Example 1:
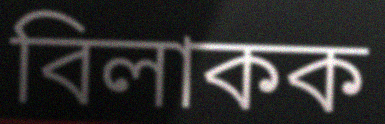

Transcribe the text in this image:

বিলাকক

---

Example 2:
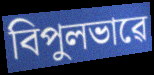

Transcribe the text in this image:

বিপুলভাৱে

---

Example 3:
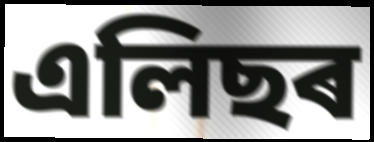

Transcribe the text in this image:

এলিছৰ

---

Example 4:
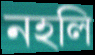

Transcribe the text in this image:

নহলি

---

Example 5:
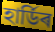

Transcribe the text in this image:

হাৰ্ডিৰ